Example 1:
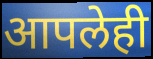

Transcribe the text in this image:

आपलेही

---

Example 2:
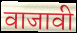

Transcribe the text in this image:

वाजावी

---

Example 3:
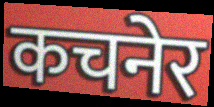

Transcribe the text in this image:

कचनेर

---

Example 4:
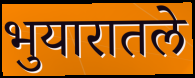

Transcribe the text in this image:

भुयारातले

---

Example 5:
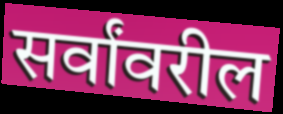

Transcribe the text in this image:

सर्वांवरील